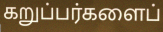
கறுப்பர்களைப்